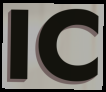
IC